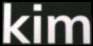
kim